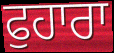
ਫੁਹਾਰਾ